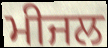
ਮੀਜਲ